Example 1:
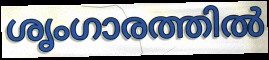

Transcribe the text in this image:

ശൃംഗാരത്തിൽ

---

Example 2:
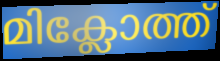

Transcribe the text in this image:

മിക്ലോത്ത്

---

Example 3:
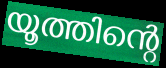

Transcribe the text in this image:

യൂത്തിന്റെ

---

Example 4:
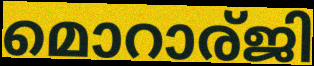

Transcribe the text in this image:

മൊറാര്ജി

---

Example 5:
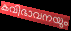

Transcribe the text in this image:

കവിഭാവനയും